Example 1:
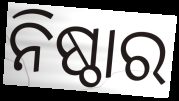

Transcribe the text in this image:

ନିଷ୍ଠାର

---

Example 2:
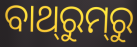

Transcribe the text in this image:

ବାଥ୍‌ରୁମ୍‌ରୁ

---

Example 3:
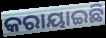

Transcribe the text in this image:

କରାୟାଇଛି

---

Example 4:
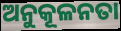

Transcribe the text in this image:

ଅନୁକୂଳନତା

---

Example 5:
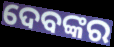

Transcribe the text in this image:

ଦେବଙ୍କର